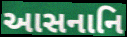
આસનાનિ